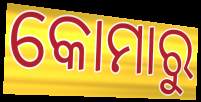
କୋମାରୁ